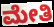
ಮೇತಿ